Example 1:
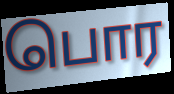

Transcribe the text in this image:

பொர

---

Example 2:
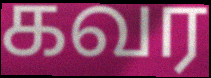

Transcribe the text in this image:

கவர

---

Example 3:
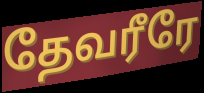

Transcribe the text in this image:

தேவரீரே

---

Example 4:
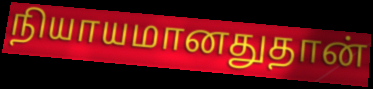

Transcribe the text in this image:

நியாயமானதுதான்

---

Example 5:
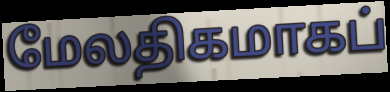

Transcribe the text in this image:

மேலதிகமாகப்